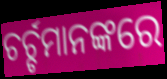
ଚର୍ଚ୍ଚମାନଙ୍କରେ